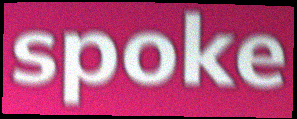
spoke